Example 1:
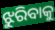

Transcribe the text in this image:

ଝୁରିବାକୁ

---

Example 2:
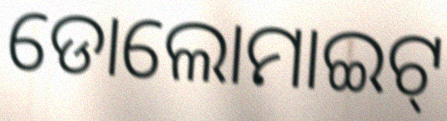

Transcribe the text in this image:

ଡୋଲୋମାଇଟ୍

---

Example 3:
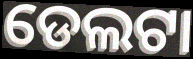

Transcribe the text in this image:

ଡେଲଟା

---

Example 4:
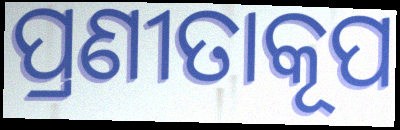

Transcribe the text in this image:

ପ୍ରଣୀତାକୂପ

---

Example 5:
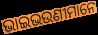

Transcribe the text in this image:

ଭାଇଭଉଣୀମାନେ